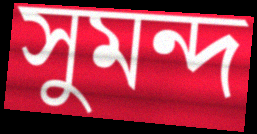
সুমন্দ